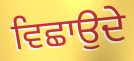
ਵਿਛਾਉਦੇ